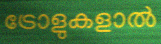
ട്രോളുകളാൽ